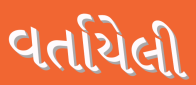
વર્તાયેલી